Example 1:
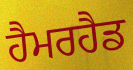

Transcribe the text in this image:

ਹੈਮਰਹੈਡ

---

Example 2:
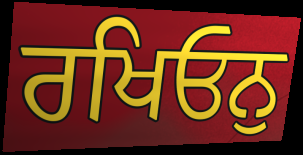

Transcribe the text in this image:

ਰਖਿਓਨੁ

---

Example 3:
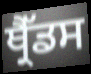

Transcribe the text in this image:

ਥ੍ਰੈੱਡਸ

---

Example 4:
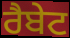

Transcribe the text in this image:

ਰੈਬੇਟ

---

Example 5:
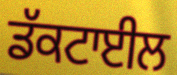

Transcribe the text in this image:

ਡੱਕਟਾਈਲ